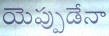
యెప్పుడేనా